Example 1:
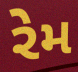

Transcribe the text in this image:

રેમ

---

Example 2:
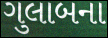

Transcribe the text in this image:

ગુલાબના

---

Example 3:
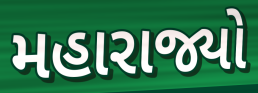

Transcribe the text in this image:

મહારાજ્યો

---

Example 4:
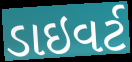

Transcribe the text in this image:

ડાઇવર્ટ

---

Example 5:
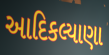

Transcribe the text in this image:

આદિકલ્યાણા